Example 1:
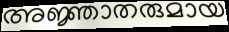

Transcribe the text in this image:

അജ്ഞാതരുമായ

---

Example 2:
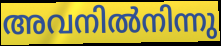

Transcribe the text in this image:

അവനിൽനിന്നു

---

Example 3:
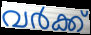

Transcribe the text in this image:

വർക്ക്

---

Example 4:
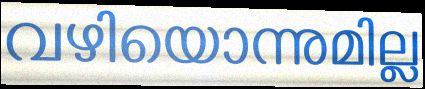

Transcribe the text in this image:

വഴിയൊന്നുമില്ല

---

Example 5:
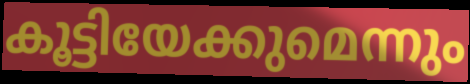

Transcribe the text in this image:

കൂട്ടിയേക്കുമെന്നും